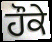
ਹੌਕੇ